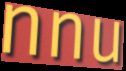
nnu